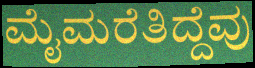
ಮೈಮರೆತಿದ್ದೆವು